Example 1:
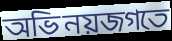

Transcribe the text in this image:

অভিনয়জগতে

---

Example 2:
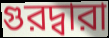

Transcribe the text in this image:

গুরদ্বারা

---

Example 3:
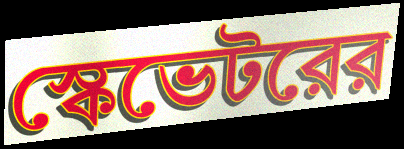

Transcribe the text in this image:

স্কেভেটরের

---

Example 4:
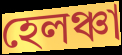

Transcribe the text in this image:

হেলঞ্চা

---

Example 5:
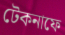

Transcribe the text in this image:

টেকনাফে